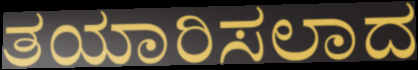
ತಯಾರಿಸಲಾದ